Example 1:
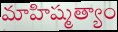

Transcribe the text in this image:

మాహిష్మత్యాం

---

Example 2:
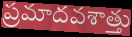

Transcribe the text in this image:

ప్రమాదవశాత్తు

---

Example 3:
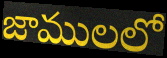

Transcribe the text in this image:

జాములలో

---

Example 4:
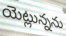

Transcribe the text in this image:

యెట్లున్నను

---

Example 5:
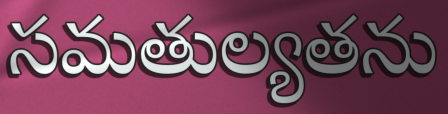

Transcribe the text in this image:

సమతుల్యతను